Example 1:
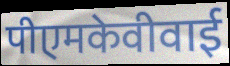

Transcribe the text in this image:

पीएमकेवीवाई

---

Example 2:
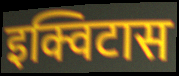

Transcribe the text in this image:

इक्विटास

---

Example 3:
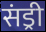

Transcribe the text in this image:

संड्री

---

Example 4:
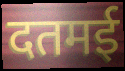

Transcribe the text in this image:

दतमई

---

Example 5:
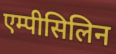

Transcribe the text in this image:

एम्पीसिलिन